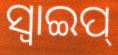
ସ୍ୱାଇପ୍